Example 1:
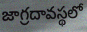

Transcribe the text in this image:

జాగ్రదావస్థలో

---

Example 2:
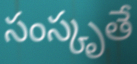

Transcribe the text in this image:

సంస్కృతే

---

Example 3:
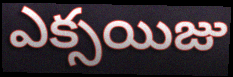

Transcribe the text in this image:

ఎక్సయిజు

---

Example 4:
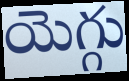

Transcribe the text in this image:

యెగ్గు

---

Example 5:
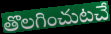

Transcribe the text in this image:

తొలగించుటచే